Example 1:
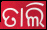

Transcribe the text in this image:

ତାଲି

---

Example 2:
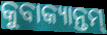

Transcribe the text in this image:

କୁବାକ୍ୟାନ୍ତମ୍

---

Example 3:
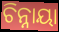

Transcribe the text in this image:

ଚିନ୍ନାୟା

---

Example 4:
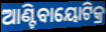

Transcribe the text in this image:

ଆଣ୍ଟିବାୟୋଟିକ୍ର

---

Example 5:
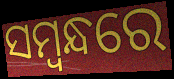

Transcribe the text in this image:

ସମ୍ୱନ୍ଧରେ